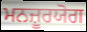
ਮਨਜ਼ੂਰਯੋਗ